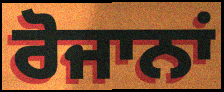
ਰੋਜਾਨਾਂ